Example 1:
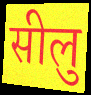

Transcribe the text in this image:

सीलु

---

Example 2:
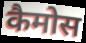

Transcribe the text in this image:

कैमोस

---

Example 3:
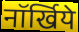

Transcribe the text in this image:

नॉर्खिये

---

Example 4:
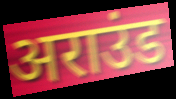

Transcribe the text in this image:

अराउंड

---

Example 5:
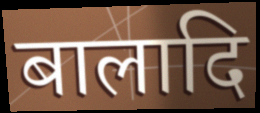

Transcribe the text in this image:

बालादि